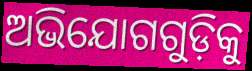
ଅଭିଯୋଗଗୁଡ଼ିକୁ